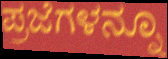
ಪ್ರಜೆಗಳನ್ನೂ